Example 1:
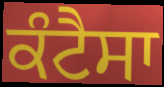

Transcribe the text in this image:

ਕੰਟੈਸਾ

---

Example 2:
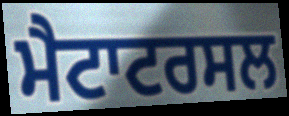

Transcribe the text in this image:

ਮੈਟਾਟਰਸਲ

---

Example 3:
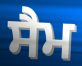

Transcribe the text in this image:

ਸੈਮ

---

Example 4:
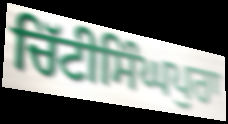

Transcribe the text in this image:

ਚਿੱਟੀਸਿੰਘਪੁਰਾ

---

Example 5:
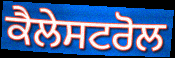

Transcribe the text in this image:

ਕੈਲੇਸਟਰੋਲ